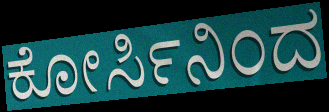
ಕೋರ್ಸಿನಿಂದ